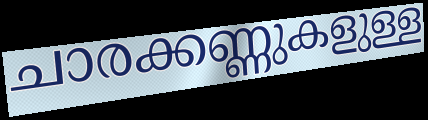
ചാരക്കണ്ണുകളുള്ള